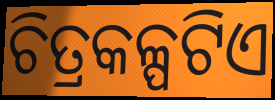
ଚିତ୍ରକଳ୍ପଟିଏ